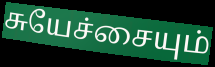
சுயேச்சையும்